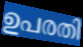
ഉപരതി